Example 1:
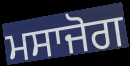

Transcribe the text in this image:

ਮਸਾਜੋਗ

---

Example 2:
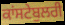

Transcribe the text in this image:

ਕਾਂਸਟੇਬੁਲਰੀ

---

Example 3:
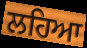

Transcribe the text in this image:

ਲਹਿਆ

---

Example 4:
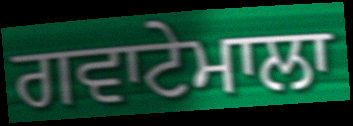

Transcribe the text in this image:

ਗਵਾਟੇਮਾਲਾ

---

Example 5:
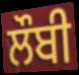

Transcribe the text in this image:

ਲੌਬੀ